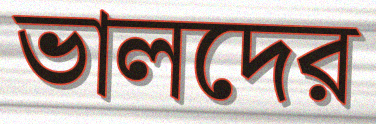
ভালদের